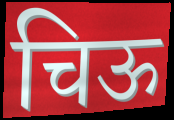
चिऊ